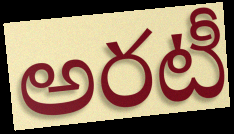
అరటీ